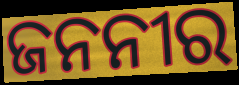
ଜନନୀର